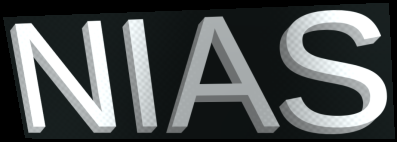
NIAS